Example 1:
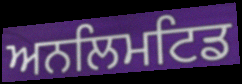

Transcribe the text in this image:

ਅਨਲਿਮਟਿਡ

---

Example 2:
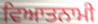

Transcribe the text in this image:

ਵਿਆਤਨਾਮੀ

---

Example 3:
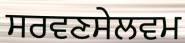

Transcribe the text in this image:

ਸਰਵਣਸੇਲਵਮ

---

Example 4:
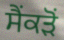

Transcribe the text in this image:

ਸੈਂਕੜੋਂ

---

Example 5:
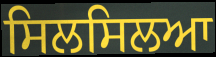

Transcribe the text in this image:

ਸਿਲਸਿਲਆ